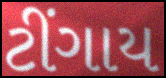
ટીંગાય